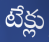
టేక్లు